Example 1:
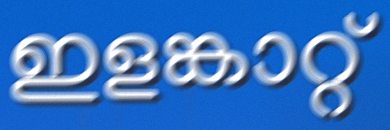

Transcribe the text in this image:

ഇളങ്കാറ്റ്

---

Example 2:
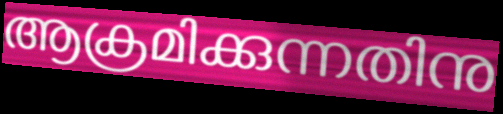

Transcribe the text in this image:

ആക്രമിക്കുന്നതിനു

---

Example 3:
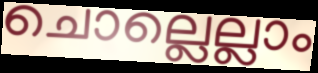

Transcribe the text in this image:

ചൊല്ലെല്ലാം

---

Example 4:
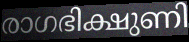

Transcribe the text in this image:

രാഗഭിക്ഷുണി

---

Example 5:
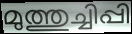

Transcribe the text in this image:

മുത്തുച്ചിപ്പി